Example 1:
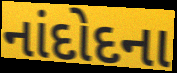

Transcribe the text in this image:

નાંદોદના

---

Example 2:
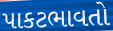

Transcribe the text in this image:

પાકટભાવતો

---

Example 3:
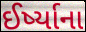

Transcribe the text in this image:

ઈર્ષ્યાના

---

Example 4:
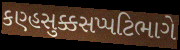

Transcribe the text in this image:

કણ્હસુક્કસપ્પટિભાગે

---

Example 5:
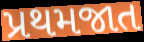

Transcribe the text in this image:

પ્રથમજાત